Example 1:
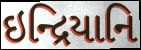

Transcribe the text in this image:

ઇન્દ્રિયાનિ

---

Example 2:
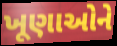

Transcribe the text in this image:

ખૂણાઓને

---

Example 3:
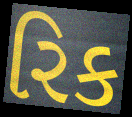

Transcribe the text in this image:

રિક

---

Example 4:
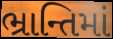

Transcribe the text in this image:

ભ્રાન્તિમાં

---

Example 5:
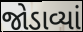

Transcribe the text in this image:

જોડાવ્યાં